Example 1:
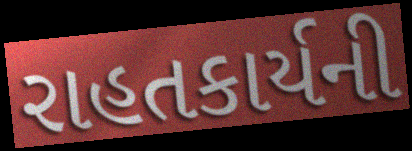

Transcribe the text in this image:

રાહતકાર્યની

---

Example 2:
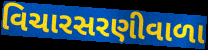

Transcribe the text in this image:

વિચારસરણીવાળા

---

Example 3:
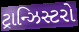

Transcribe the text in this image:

ટ્રાન્ઝિસ્ટરો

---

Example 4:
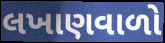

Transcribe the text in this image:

લખાણવાળો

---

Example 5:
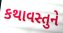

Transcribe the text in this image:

કથાવસ્તુને